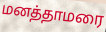
மனத்தாமரை